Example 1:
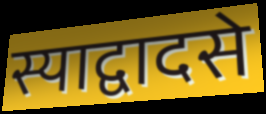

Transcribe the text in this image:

स्याद्वादसे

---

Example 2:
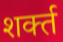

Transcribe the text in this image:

शर्क्त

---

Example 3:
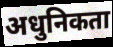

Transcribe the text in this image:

अधुनिकता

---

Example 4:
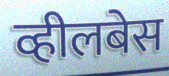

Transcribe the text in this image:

व्हीलबेस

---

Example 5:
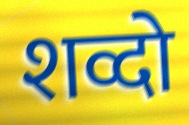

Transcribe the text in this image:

शव्दो